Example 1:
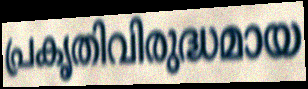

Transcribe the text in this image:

പ്രകൃതിവിരുദ്ധമായ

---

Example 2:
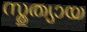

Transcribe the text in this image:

സ്തുത്യായ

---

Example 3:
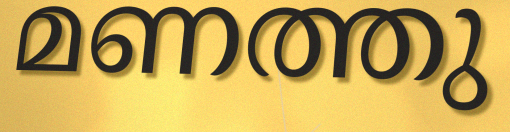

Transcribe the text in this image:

മണത്തു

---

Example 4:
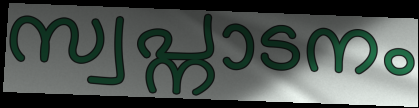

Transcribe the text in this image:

സ്വപ്നാടനം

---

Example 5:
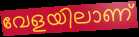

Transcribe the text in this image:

വേളയിലാണ്